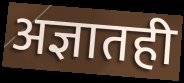
अज्ञातही